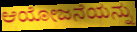
ಆಯೋಜನೆಯನ್ನು